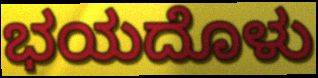
ಭಯದೊಳು